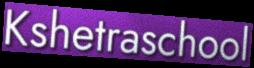
Kshetraschool